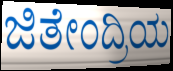
ಜಿತೇಂದ್ರಿಯ